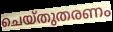
ചെയ്തുതരണം